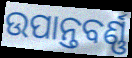
ଉପାନ୍ତବର୍ଣ୍ଣ